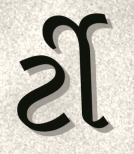
ર્ટી